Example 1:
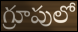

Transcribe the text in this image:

గ్రూపులో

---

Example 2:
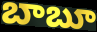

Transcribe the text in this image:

బాబూ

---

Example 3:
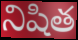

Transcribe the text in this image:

నిషిత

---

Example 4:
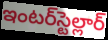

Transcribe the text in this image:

ఇంటర్‌స్టెల్లార్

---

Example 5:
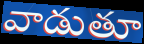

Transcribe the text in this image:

వాడుతూ